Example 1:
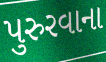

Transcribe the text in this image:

પુરુરવાના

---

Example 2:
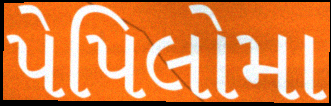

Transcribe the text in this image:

પેપિલોમા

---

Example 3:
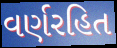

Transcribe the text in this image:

વર્ણરહિત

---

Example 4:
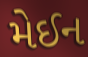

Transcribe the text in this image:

મેઈન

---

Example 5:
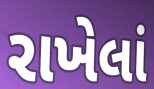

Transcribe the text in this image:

રાખેલાં